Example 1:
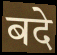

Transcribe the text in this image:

बदे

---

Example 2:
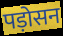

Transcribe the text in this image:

पड़ोसन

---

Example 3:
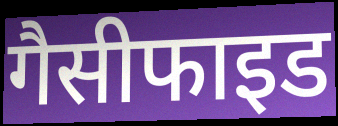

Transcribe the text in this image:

गैसीफाइड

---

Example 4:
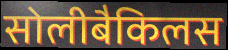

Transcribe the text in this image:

सोलीबैकिलस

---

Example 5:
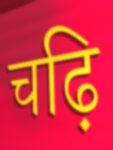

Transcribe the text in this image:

चढ़ि